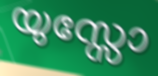
യുസ്സോ